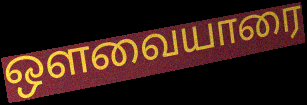
ஔவையாரை